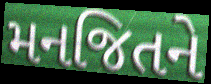
મનજિતને